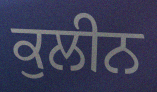
ਕੁਲੀਨ